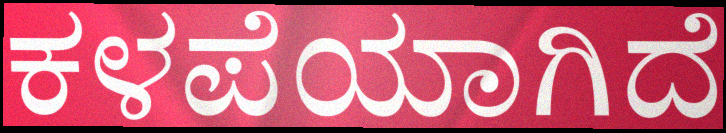
ಕಳಪೆಯಾಗಿದೆ